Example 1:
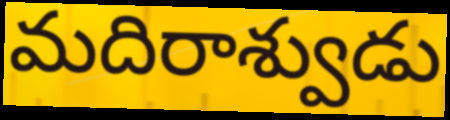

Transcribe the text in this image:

మదిరాశ్వుడు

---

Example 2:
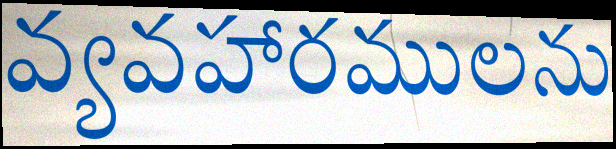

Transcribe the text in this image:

వ్యవహారములను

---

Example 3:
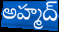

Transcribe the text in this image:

అహ్మద్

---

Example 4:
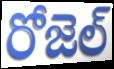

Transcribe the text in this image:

రోజెల్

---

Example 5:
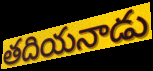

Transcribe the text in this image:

తదియనాడు